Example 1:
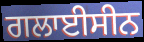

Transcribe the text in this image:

ਗਲਾਈਸੀਨ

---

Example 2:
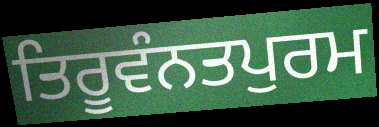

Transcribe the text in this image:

ਤਿਰੂਵੰਨਤਪੁਰਮ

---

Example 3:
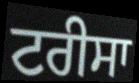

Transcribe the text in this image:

ਟਰੀਸਾ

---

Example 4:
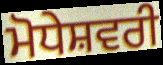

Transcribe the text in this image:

ਮੋਧੇਸ਼ਵਰੀ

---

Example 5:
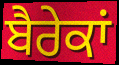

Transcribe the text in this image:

ਬੈਰੇਕਾਂ